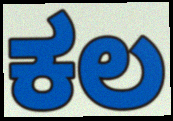
ಕಲ